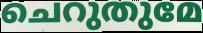
ചെറുതുമേ